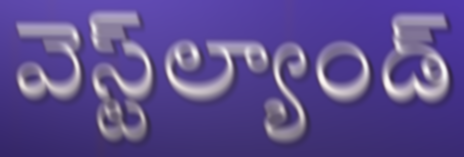
వెస్ట్‌ల్యాండ్